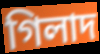
গিলাদ